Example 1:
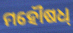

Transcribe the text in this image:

ମହୌଷଧ୍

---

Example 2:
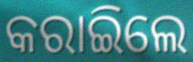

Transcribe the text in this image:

କରାଇିଲେ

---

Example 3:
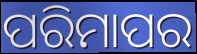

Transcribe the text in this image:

ପରିମାପର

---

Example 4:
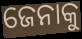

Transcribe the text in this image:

ଜେନାକୁ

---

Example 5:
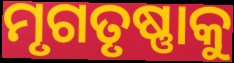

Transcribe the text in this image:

ମୃଗତୃଷ୍ଣାକୁ